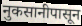
नुकसानीपासून